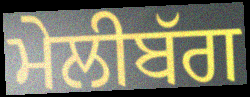
ਮੇਲੀਬੱਗ